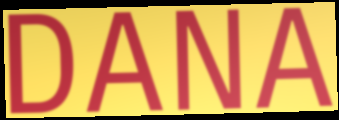
DANA